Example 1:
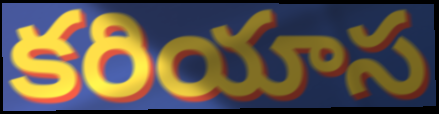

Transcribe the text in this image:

కరియాస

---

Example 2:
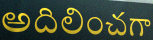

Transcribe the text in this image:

అదిలించగా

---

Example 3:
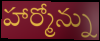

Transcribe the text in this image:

హార్మోన్ను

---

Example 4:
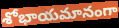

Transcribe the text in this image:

శోభాయమానంగా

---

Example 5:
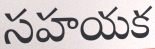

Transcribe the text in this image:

సహయక